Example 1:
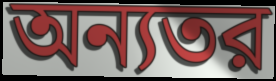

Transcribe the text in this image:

অন্যতর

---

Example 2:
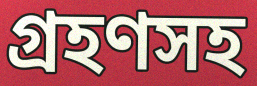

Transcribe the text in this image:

গ্রহণসহ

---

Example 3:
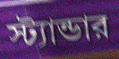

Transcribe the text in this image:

স্ট্যান্ডার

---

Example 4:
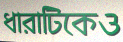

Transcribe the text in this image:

ধারাটিকেও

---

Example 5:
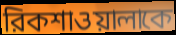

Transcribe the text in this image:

রিকশাওয়ালাকে